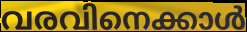
വരവിനെക്കാൾ